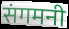
संगमनी